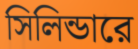
সিলিন্ডারে